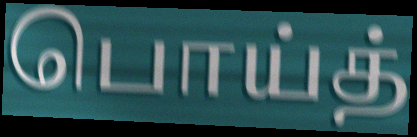
பொய்த்